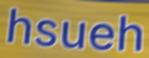
hsueh